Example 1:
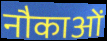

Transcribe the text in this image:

नौकाओं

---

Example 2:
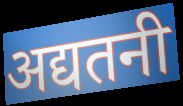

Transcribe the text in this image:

अद्यतनी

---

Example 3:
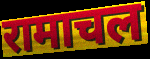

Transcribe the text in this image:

रामाचल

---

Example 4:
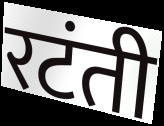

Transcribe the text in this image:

रटंती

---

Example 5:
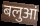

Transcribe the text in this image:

बलुआं